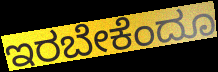
ಇರಬೇಕೆಂದೂ